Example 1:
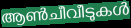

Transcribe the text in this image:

ആൺചീവീടുകൾ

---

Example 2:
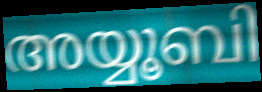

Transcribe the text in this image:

അയ്യൂബി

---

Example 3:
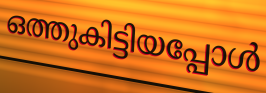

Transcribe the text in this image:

ഒത്തുകിട്ടിയപ്പോൾ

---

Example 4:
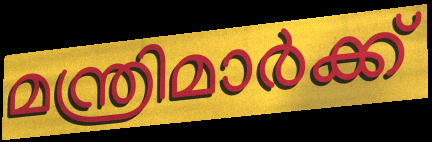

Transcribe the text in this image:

മന്ത്രിമാർക്ക്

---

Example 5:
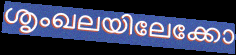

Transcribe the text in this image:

ശൃംഖലയിലേക്കോ